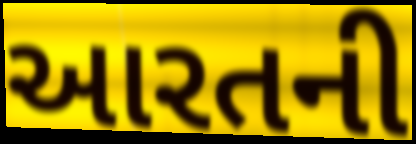
આરતની